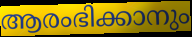
ആരംഭിക്കാനും